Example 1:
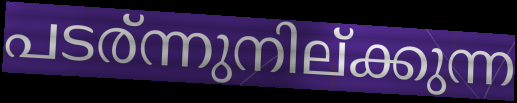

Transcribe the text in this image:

പടര്ന്നുനില്ക്കുന്ന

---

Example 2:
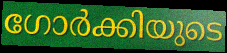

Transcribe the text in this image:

ഗോർക്കിയുടെ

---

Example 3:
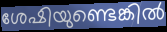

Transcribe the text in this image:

ശേഷിയുണ്ടെങ്കിൽ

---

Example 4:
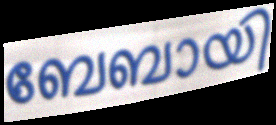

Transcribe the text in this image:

ബേബായി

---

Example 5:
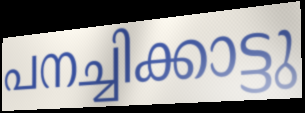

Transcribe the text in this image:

പനച്ചിക്കാട്ടു